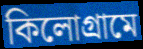
কিলোগ্রামে